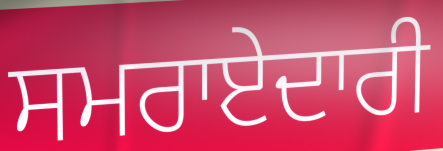
ਸਮਰਾਏਦਾਰੀ